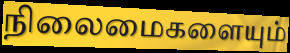
நிலைமைகளையும்